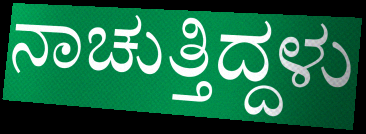
ನಾಚುತ್ತಿದ್ದಳು